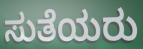
ಸುತೆಯರು